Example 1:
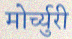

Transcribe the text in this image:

मोर्च्युरी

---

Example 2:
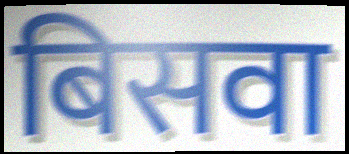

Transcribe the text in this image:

बिसवा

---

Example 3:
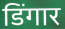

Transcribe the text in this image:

डिंगार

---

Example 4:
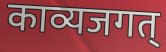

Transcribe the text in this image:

काव्यजगत्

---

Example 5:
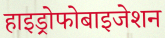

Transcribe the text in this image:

हाइड्रोफोबाइजेशन